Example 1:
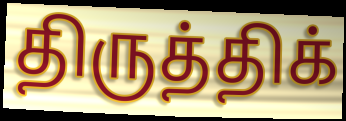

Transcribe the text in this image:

திருத்திக்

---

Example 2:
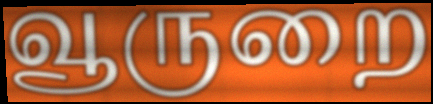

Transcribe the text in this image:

வூருறை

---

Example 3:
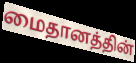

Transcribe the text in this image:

மைதானத்தின்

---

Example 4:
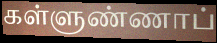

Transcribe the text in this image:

கள்ளுண்ணாப்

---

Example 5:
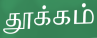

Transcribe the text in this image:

தூக்கம்